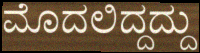
ಮೊದಲಿದ್ದದ್ದು